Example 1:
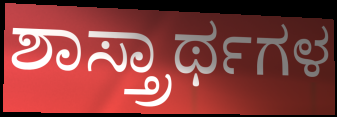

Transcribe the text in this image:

ಶಾಸ್ತ್ರಾರ್ಥಗಳ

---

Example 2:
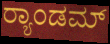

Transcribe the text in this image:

ರ್‍ಯಾಂಡಮ್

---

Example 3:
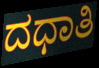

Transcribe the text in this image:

ದಧಾತಿ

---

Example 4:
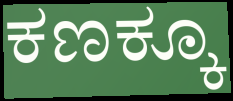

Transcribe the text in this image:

ಕಣಕ್ಕೂ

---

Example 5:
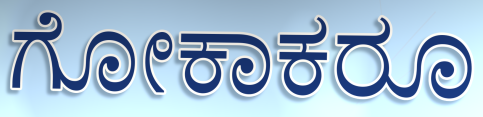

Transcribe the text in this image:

ಗೋಕಾಕರೂ